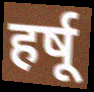
हर्षू